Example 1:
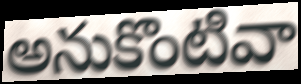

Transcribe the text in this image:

అనుకొంటివా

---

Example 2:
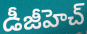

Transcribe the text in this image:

డీజీహెచ్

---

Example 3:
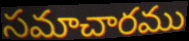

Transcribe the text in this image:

సమాచారము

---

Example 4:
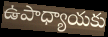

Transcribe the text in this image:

ఉపాధ్యాయకు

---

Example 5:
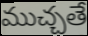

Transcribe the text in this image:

ముచ్చతే